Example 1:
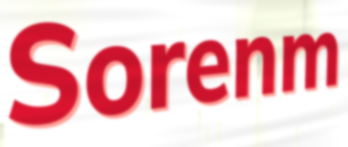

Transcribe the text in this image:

Sorenm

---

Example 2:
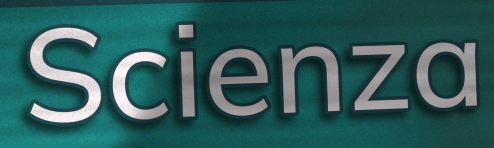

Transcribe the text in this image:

Scienza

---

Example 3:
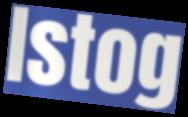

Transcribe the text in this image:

Istog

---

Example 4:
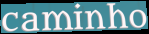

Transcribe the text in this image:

caminho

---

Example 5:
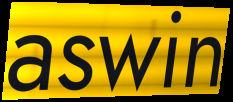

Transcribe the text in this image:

aswin